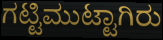
ಗಟ್ಟಿಮುಟ್ಟಾಗಿರು